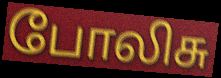
போலிசு